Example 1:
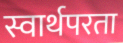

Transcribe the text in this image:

स्वार्थपरता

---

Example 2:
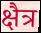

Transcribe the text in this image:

क्षैत्र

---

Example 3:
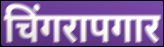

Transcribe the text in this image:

चिंगरापगार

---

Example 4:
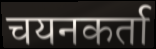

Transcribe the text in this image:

चयनकर्ता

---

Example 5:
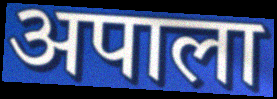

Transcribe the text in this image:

अपाला